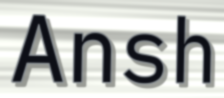
Ansh